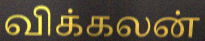
விக்கலன்